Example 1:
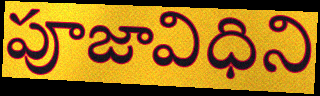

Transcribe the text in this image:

పూజావిధిని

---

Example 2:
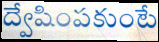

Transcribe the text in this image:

ద్వేషింపకుంటే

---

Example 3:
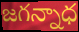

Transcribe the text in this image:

జగన్నాధ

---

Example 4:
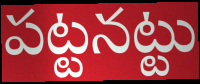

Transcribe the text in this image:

పట్టనట్టు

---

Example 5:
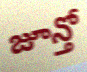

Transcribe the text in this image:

జూన్తో